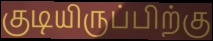
குடியிருப்பிற்கு